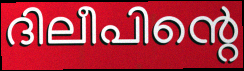
ദിലീപിന്റെ